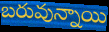
బరువున్నాయి